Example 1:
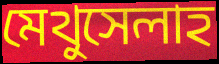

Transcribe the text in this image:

মেথুসেলাহ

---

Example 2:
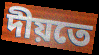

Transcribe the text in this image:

দীয়তে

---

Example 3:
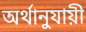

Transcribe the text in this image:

অর্থানুযায়ী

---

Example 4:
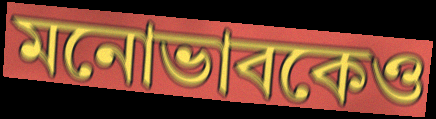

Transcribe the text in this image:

মনোভাবকেও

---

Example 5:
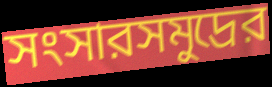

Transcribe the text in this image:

সংসারসমুদ্রের